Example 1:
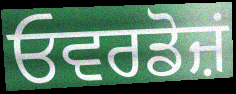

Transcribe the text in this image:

ਓਵਰਡੋਜ਼ਂ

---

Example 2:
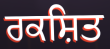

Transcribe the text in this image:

ਰਕਸ਼ਿਤ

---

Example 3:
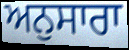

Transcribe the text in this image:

ਅਨੁਸਾਰਾ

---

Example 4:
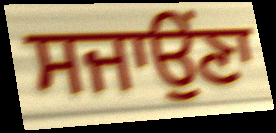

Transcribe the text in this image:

ਸਜਾਉਂਣਾ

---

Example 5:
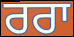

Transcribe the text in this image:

ਰਰਾ